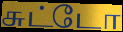
சுட்டோ